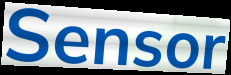
Sensor